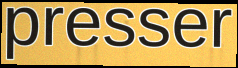
presser